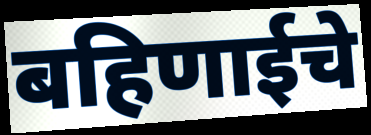
बहिणाईचे